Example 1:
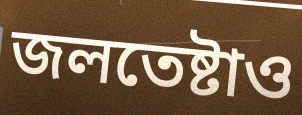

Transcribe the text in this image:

জলতেষ্টাও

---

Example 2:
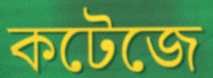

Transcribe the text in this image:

কটেজে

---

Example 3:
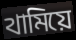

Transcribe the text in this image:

থামিয়ে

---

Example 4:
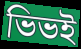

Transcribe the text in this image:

ভিভই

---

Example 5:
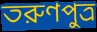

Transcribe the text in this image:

তরুণপুত্র